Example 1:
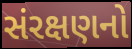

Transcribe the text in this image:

સંરક્ષણનો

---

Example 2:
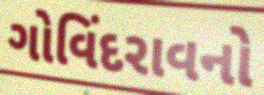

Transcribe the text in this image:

ગોવિંદરાવનો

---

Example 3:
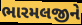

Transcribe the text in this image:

ભારમલજીને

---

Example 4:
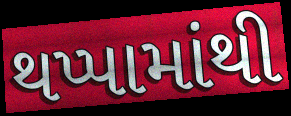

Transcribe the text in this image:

થપ્પામાંથી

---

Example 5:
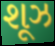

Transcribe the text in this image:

શૂઝ